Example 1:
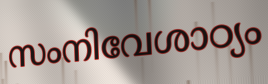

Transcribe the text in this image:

സംനിവേശാഠ്യം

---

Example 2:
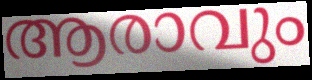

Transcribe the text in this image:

ആരാവും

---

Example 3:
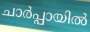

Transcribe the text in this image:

ചാർപ്പായിൽ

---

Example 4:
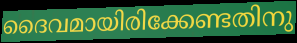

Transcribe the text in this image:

ദൈവമായിരിക്കേണ്ടതിനു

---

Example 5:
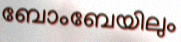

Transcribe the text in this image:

ബോംബേയിലും